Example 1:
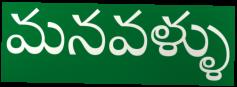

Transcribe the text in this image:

మనవళ్ళు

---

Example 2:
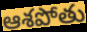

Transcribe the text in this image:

ఆశపోతు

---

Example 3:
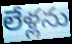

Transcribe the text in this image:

లేళ్లను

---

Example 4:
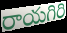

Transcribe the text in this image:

రాయగిరి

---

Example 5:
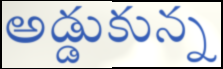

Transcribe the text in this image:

అడ్డుకున్న